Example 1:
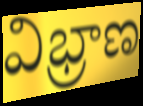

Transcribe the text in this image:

విభ్రాణ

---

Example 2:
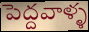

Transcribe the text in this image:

పెద్దవాళ్ళ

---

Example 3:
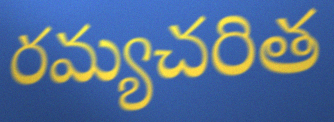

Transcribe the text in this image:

రమ్యచరిత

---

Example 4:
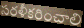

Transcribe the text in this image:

సరళీకరించాలి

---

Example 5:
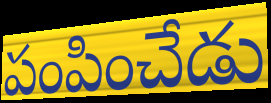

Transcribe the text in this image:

పంపించేడు